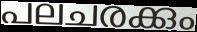
പലചരക്കും